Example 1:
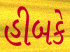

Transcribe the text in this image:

હીબકે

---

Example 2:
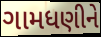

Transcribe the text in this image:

ગામધણીને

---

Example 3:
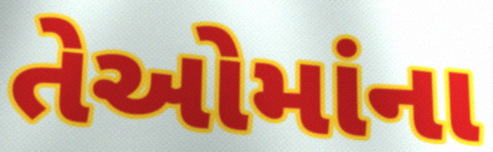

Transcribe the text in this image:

તેઓમાંના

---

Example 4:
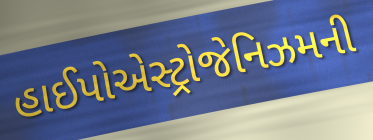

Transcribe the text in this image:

હાઈપોએસ્ટ્રોજેનિઝમની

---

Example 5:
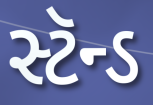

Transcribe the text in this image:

સ્ટૅન્ડ